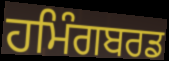
ਹਮਿੰਗਬਰਡ